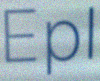
Epl